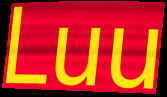
Luu